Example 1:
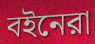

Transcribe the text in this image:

বইনেরা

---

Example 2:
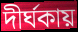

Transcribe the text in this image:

দীর্ঘকায়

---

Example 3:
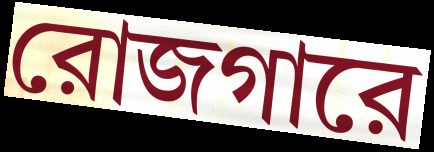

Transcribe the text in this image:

রোজগারে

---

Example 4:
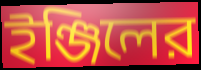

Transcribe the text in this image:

ইঞ্জিলের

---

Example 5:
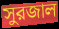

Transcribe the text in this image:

সুরজাল